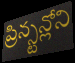
ప్రిన్స్టన్లోని